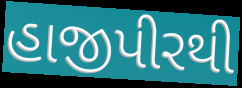
હાજીપીરથી